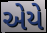
એયે